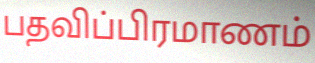
பதவிப்பிரமாணம்